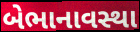
બેભાનાવસ્થા